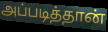
அப்படித்தான்